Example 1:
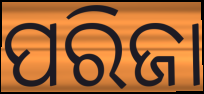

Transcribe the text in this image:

ପରିଜା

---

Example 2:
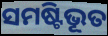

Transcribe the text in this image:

ସମଷ୍ଟିଭୂତ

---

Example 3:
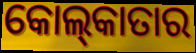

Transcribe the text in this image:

କୋଲ୍‌କାତାର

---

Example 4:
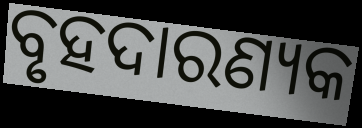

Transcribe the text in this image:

ବୃହଦାରଣ୍ୟକ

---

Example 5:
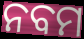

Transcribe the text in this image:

ନବମ